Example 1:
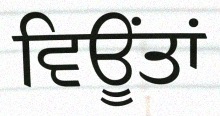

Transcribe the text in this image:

ਵਿਊਂਤਾਂ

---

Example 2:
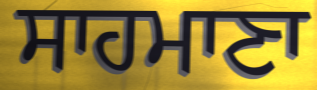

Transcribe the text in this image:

ਸਾਹਮਾਣਾ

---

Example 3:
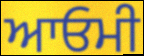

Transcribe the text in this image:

ਆਓਮੀ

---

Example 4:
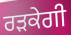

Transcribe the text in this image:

ਰੜਕੇਗੀ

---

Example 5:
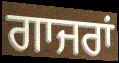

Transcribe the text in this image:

ਗਾਜਰਾਂ